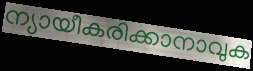
ന്യായീകരിക്കാനാവുക